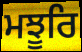
ਮਝੂਰਿ